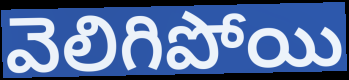
వెలిగిపోయి